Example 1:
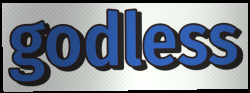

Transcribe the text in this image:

godless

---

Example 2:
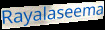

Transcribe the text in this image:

Rayalaseema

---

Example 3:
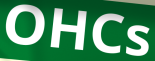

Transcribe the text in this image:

OHCs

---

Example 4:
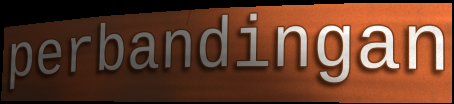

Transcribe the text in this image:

perbandingan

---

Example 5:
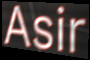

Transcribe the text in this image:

Asir